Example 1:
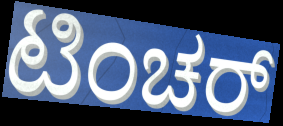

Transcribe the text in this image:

ಟಿಂಚರ್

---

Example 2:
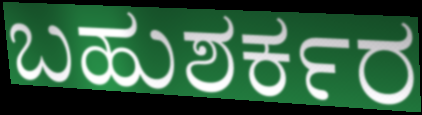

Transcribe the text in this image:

ಬಹುಶರ್ಕರ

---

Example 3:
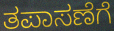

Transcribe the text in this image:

ತಪಾಸಣೆಗೆ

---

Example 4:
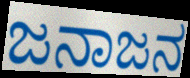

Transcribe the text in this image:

ಜನಾಜನ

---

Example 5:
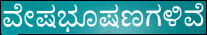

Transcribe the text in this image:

ವೇಷಭೂಷಣಗಳಿವೆ